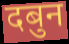
दबुन